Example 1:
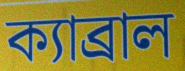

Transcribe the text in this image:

ক্যাব্রাল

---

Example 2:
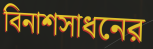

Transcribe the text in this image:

বিনাশসাধনের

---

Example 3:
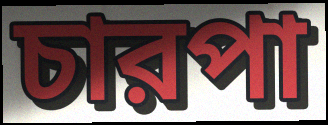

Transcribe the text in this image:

চারপা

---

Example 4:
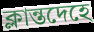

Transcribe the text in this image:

ক্লান্তদেহে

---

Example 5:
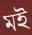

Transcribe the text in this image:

মই